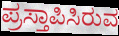
ಪ್ರಸ್ತಾಪಿಸಿರುವ